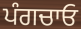
ਪੰਗਚਾਓ